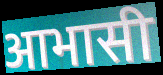
आभासी